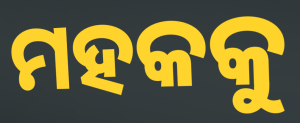
ମହକକୁ